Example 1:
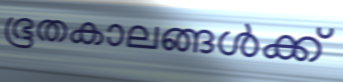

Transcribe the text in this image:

ഭൂതകാലങ്ങൾക്ക്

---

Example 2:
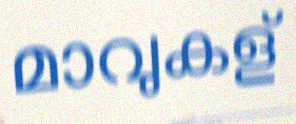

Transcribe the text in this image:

മാവുകള്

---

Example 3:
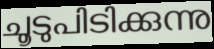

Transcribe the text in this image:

ചൂടുപിടിക്കുന്നു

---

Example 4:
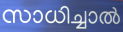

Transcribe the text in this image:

സാധിച്ചാൽ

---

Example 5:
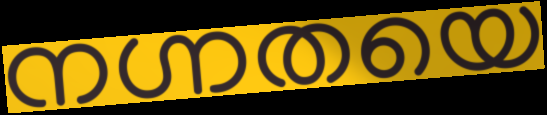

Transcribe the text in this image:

നഗ്നതയെ